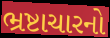
ભ્રષ્ટાચારનો